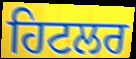
ਹਿਟਲਰ